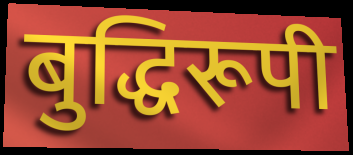
बुद्धिरूपी